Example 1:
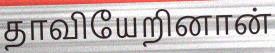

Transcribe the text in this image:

தாவியேறினான்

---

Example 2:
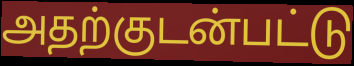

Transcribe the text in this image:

அதற்குடன்பட்டு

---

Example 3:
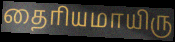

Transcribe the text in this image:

தைரியமாயிரு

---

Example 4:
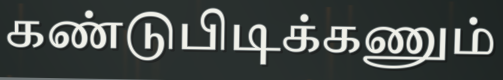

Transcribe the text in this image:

கண்டுபிடிக்கணும்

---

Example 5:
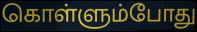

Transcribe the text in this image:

கொள்ளும்போது